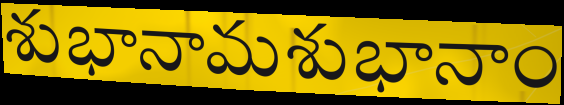
శుభానామశుభానాం